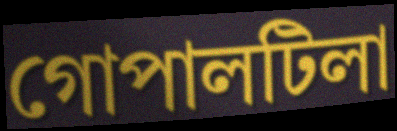
গোপালটিলা